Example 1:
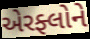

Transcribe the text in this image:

એરફ્લોને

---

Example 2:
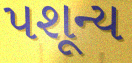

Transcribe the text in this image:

પશૂન્ય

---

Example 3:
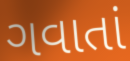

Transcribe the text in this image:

ગવાતાં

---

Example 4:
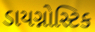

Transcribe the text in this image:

ડાયગ્નોસ્ટિક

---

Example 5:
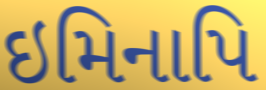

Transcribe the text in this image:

ઇમિનાપિ